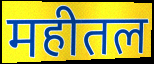
महीतल